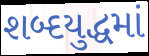
શબ્દયુદ્ધમાં